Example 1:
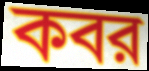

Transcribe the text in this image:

কবর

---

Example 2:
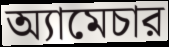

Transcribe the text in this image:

অ্যামেচার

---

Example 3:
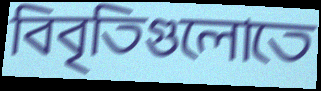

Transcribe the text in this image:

বিবৃতিগুলোতে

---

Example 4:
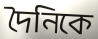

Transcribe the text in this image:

দৈনিকে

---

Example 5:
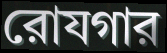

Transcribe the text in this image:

রোযগার